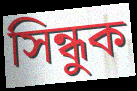
সিন্ধুক